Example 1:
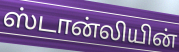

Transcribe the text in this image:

ஸ்டான்லியின்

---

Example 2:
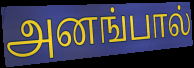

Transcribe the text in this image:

அனங்பால்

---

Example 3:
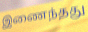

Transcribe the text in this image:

இணைந்தது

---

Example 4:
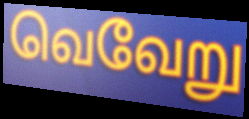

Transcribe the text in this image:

வெவேறு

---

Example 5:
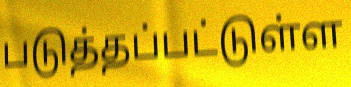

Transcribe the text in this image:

படுத்தப்பட்டுள்ள